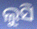
ଲୁସି